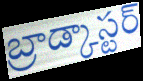
బ్రాడ్కాస్టర్